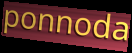
ponnoda